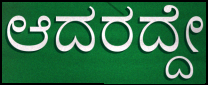
ಆದರದ್ದೇ